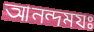
আনন্দমযঃ